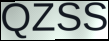
QZSS